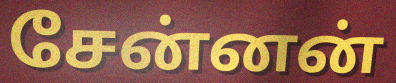
சேன்னன்